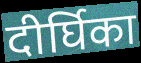
दीर्घिका